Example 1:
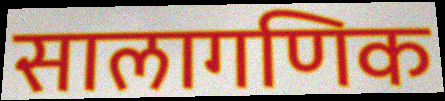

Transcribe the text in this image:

सालागणिक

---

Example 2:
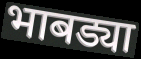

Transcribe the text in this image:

भाबड्या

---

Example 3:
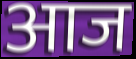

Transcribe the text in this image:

आज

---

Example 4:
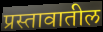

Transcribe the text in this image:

प्रस्तावातील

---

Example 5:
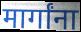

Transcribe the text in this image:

मार्गांना